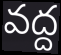
వద్ద